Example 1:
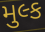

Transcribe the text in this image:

મુલ્ક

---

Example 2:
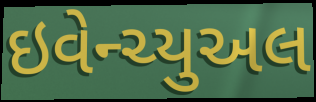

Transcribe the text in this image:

ઇવેન્ચ્યુઅલ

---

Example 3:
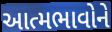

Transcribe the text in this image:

આત્મભાવોને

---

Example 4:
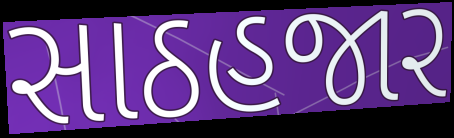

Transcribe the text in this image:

સાઠહજાર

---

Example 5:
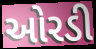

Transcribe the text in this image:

ઓરડી